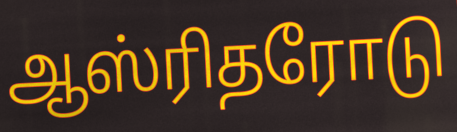
ஆஸ்ரிதரோடு